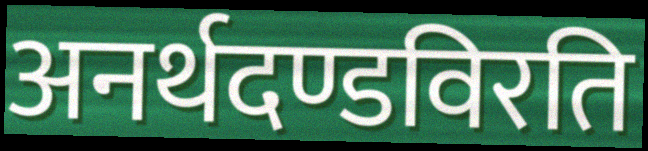
अनर्थदण्डविरति